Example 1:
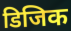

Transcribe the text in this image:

डिजिक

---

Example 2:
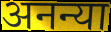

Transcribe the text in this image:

अनन्या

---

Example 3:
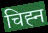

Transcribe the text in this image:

चिह्‍न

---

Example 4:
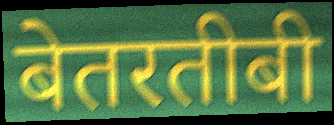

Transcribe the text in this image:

बेतरतीबी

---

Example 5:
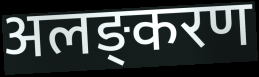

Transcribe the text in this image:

अलङ्करण